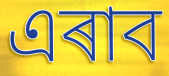
এৰাব